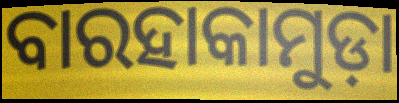
ବାରହାକାମୁଡ଼ା